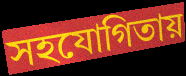
সহযোগিতায়